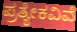
ಪ್ರತ್ಯೇಕವಿವೆ